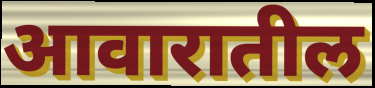
आवारातील